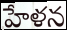
హేళన